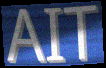
AIT